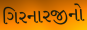
ગિરનારજીનો